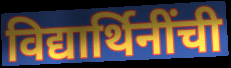
विद्यार्थिनींची